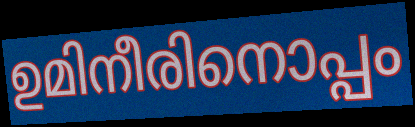
ഉമിനീരിനൊപ്പം